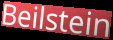
Beilstein